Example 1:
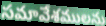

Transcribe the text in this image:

సమావేశములను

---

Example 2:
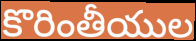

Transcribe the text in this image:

కొరింతీయుల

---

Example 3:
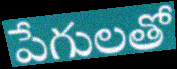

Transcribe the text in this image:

పేగులతో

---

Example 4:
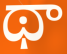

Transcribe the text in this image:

థా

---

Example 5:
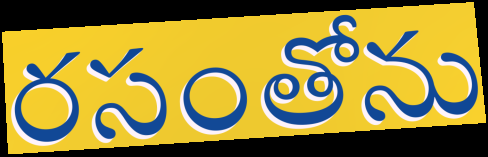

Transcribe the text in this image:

రసంతోను